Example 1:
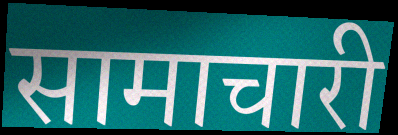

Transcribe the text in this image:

सामाचारी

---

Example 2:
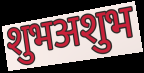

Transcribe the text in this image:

शुभअशुभ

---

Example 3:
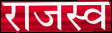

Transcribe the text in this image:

राजस्व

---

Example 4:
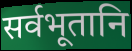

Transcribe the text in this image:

सर्वभूतानि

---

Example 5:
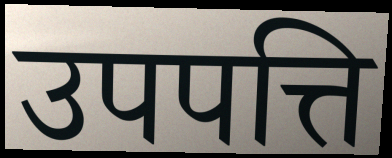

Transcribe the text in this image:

उपपत्ति